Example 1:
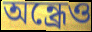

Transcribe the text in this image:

অন্ধ্রেও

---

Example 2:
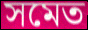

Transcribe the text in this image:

সমেত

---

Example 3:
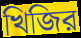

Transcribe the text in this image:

খিজির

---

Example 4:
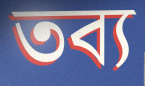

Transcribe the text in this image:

তব্য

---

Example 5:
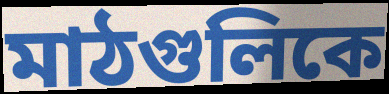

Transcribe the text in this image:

মাঠগুলিকে